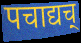
पचाद्यच्